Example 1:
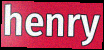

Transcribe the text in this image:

henry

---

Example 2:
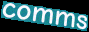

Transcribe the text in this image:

comms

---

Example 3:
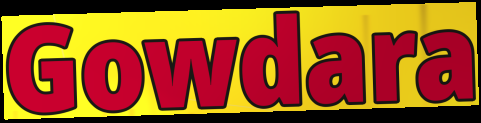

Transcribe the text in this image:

Gowdara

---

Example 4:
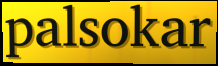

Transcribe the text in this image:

palsokar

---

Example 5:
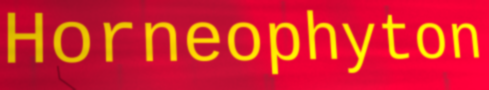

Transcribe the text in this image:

Horneophyton